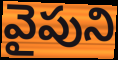
వైపుని